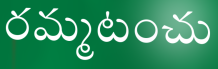
రమ్మటంచు